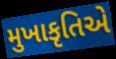
મુખાકૃતિએ